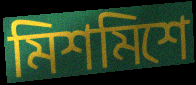
মিশমিশে